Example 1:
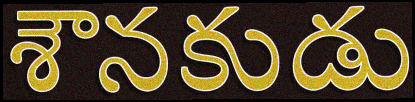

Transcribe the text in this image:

శౌనకుడు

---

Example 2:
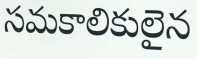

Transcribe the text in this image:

సమకాలికులైన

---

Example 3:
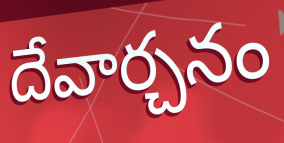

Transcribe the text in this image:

దేవార్చనం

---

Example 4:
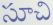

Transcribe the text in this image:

సూచి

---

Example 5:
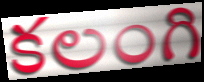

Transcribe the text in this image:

కలంగి